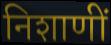
निशाणीं